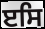
ੲਸਿ